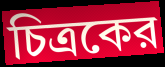
চিত্রকের